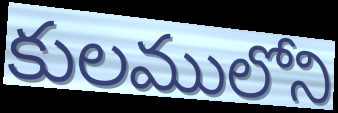
కులములోని